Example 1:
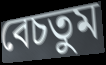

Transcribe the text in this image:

বেচতুম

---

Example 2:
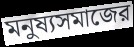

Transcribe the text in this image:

মনুষ্যসমাজের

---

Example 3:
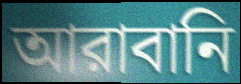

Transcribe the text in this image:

আরাবানি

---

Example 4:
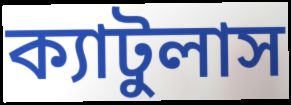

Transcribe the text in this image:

ক্যাটুলাস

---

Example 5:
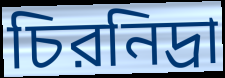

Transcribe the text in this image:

চিরনিদ্রা